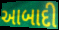
આબાદી